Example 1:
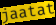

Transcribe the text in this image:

jaatat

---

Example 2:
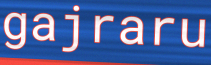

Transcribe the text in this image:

gajraru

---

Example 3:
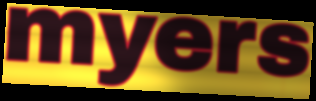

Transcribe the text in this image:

myers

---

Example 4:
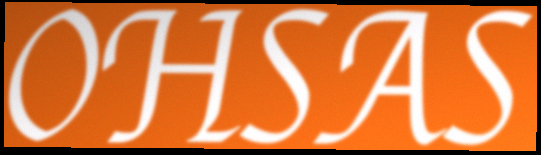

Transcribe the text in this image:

OHSAS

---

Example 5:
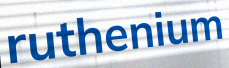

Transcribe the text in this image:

ruthenium